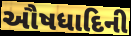
ઔષધાદિની